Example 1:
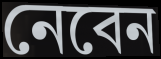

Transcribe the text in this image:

নেবেন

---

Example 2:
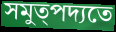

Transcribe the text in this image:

সমুত্পদ্যতে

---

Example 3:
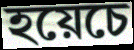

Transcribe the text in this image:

হয়েচে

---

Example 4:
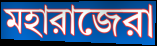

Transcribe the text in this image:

মহারাজেরা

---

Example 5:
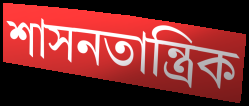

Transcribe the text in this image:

শাসনতান্ত্রিক